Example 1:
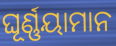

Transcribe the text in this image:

ଘୂର୍ଣ୍ଣୟାମାନ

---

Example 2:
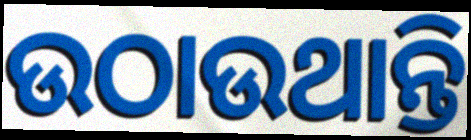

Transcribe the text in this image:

ଉଠାଉଥାନ୍ତି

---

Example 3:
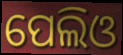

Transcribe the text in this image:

ପେଲିଓ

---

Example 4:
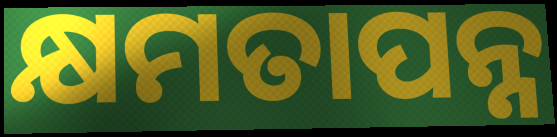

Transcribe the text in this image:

କ୍ଷମତାପନ୍ନ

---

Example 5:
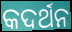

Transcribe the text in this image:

କଦର୍ଥନ